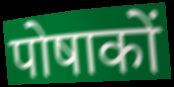
पोषाकों